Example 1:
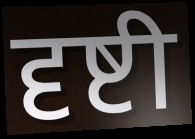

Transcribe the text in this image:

दृष्टी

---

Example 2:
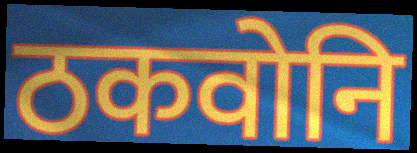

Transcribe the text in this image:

ठकवोनि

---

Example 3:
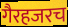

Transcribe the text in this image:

गैरहजरच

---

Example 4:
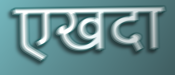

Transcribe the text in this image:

एखदा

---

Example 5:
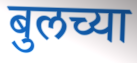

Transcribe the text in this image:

बुलच्या